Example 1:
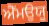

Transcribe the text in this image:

ਐੱਮਉਯੂ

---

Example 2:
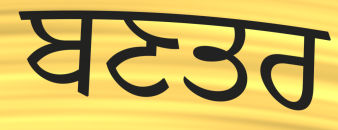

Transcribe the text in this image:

ਬਣਤਰ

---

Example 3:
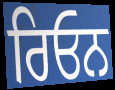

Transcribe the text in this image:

ਰਿਓਨ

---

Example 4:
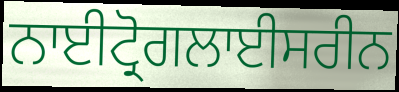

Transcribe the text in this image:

ਨਾਈਟ੍ਰੋਗਲਾਈਸਰੀਨ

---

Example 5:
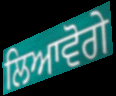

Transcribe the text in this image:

ਲਿਆਵੋਗੇ